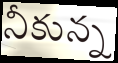
నీకున్న